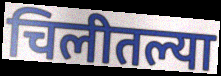
चिलीतल्या